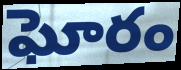
ఘోరం